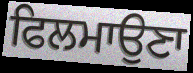
ਫਿਲਮਾਉਣਾ